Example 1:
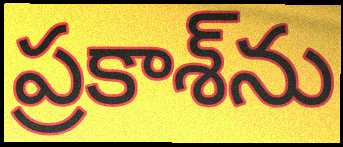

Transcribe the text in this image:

ప్రకాశ్‌ను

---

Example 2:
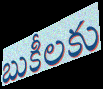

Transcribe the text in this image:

బుకీలకు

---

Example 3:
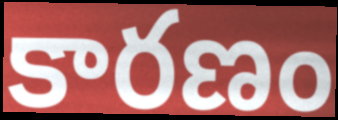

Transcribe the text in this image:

కారణం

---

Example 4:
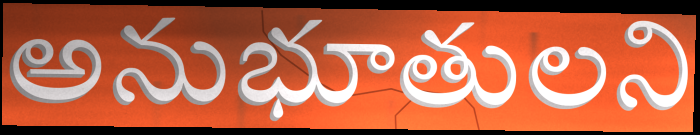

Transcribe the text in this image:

అనుభూతులని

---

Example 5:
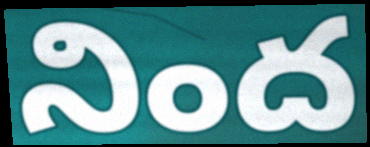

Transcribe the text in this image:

నింద